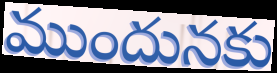
ముందునకు